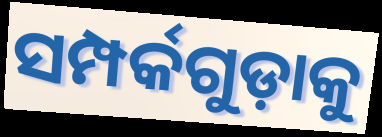
ସମ୍ପର୍କଗୁଡ଼ାକୁ